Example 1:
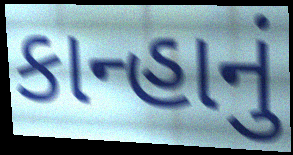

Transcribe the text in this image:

કાન્હાનું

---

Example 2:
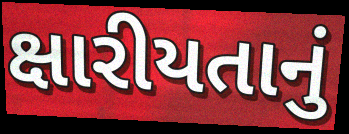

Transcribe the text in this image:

ક્ષારીયતાનું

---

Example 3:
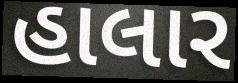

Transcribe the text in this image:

હાલાર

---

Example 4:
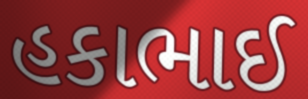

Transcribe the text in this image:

હકાભાઈ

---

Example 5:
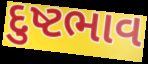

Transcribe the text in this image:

દુષ્ટભાવ